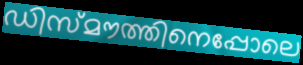
ഡിസ്മൗത്തിനെപ്പോലെ